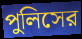
পুলিসের